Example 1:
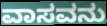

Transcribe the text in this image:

ವಾಸವನು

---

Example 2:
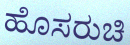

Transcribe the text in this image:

ಹೊಸರುಚಿ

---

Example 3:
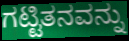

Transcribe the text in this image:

ಗಟ್ಟಿತನವನ್ನು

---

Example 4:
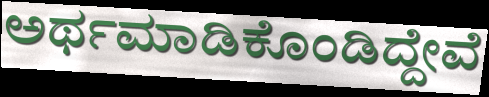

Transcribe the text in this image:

ಅರ್ಥಮಾಡಿಕೊಂಡಿದ್ದೇವೆ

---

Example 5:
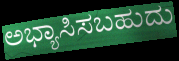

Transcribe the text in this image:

ಅಭ್ಯಾಸಿಸಬಹುದು